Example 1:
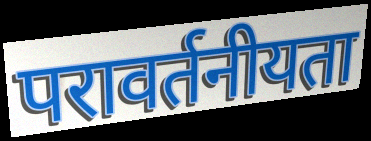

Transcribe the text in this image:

परावर्तनीयता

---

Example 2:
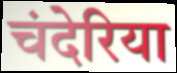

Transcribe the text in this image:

चंदेरिया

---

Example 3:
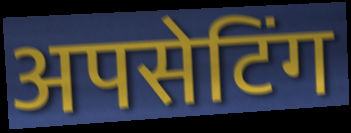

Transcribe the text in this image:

अपसेटिंग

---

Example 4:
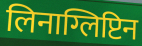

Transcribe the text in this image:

लिनाग्लिप्टिन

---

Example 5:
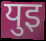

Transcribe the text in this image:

युइ